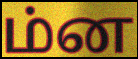
ம்ன